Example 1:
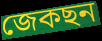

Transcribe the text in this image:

জেকছন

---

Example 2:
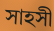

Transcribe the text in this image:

সাহসী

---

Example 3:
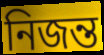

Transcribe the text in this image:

নিজন্ত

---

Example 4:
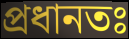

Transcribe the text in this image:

প্ৰধানতঃ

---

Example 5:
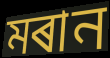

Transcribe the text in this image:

মৰান